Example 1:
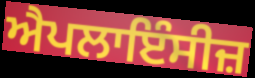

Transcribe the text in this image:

ਐਪਲਾਇੰਸੀਜ਼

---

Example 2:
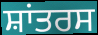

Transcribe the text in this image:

ਸ਼ਾਂਤਰਸ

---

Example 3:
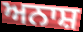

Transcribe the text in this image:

ਅਨਾਸ਼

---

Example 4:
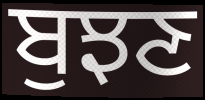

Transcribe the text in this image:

ਬੁਝਣ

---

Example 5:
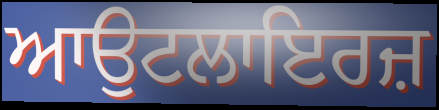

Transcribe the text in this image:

ਆਉਟਲਾਇਰਜ਼